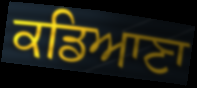
ਕਡਿਆਣਾ